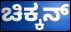
ಚಿಕ್ಕನ್